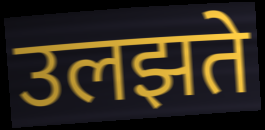
उलझते